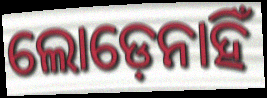
ଲୋଡ଼େନାହିଁ